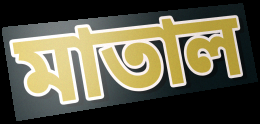
মাতাল